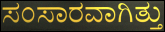
ಸಂಸಾರವಾಗಿತ್ತು